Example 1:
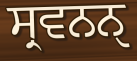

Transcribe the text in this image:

ਸ੍ਰਵਨਨੑ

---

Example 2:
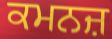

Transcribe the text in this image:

ਕਮਨਜ਼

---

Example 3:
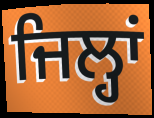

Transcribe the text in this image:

ਜਿਲ੍ਹਾਂ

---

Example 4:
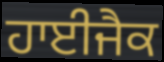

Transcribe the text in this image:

ਹਾਈਜੈਕ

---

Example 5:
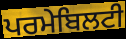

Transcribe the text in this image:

ਪਰਮੇਬਿਲਟੀ